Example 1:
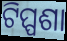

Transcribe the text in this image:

ଟିପ୍ପଶା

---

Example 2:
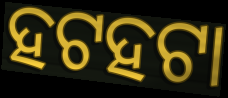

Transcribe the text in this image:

ହଟହଟା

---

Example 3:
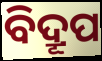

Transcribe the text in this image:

ବିଦ୍ରୂପ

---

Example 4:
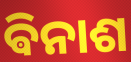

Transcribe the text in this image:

ଵିନାଶ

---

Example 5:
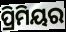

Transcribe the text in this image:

ପ୍ରିମିୟର